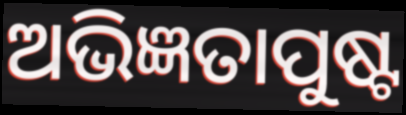
ଅଭିଜ୍ଞତାପୁଷ୍ଟ